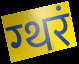
ग्थरं